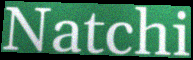
Natchi